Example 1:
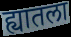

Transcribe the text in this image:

ह्यातला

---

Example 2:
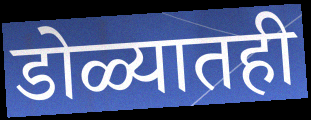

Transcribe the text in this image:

डोळ्यातही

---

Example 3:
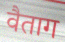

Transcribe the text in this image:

वैताग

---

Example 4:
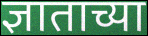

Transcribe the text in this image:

ज्ञाताच्या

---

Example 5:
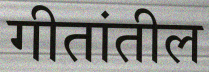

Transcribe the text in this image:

गीतांतील